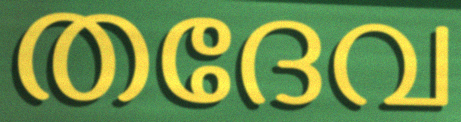
തദേവ